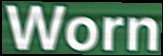
Worn